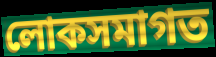
লোকসমাগত